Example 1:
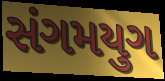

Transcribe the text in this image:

સંગમયુગ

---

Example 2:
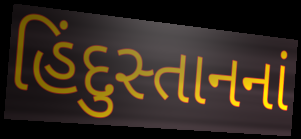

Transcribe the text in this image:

હિંદુસ્તાનનાં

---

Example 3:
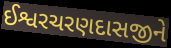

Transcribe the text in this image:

ઈશ્વરચરણદાસજીને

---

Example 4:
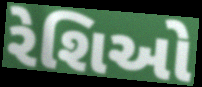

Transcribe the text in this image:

રેશિઓ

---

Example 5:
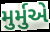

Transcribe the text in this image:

મુર્મુએ